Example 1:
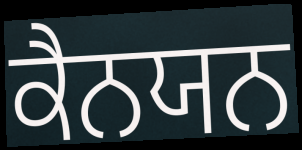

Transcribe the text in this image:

ਕੈਨਯਨ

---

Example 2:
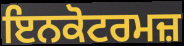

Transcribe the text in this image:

ਇਨਕੋਟਰਮਜ਼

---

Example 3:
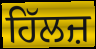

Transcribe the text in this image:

ਹਿੱਲਜ਼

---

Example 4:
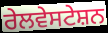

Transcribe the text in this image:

ਰੇਲਵੇਸਟੇਸ਼ਨ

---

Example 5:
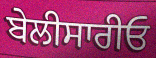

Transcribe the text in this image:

ਬੇਲੀਸਾਰੀਓ